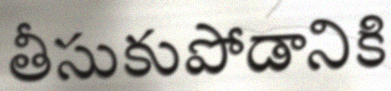
తీసుకుపోడానికి